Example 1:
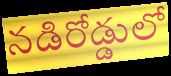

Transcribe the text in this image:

నడిరోడ్డులో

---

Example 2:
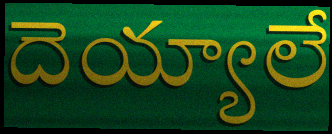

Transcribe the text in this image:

దెయ్యాలే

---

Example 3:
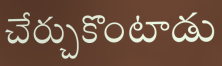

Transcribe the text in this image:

చేర్చుకొంటాడు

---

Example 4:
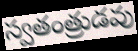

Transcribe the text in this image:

స్వతంత్రుడవు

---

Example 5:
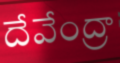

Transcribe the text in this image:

దేవేంద్రా